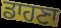
ਡਾਹਣਾ